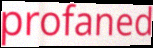
profaned